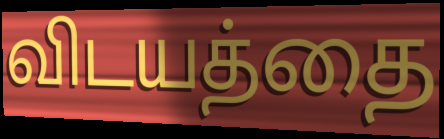
விடயத்தை